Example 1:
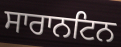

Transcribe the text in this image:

ਸਾਰਾਨਟਿਨ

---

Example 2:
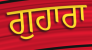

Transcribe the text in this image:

ਗੁਹਾਰਾ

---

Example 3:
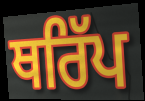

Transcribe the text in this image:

ਥਰਿੱਪ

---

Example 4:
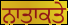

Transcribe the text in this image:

ਨਾਤਾਕਤੇ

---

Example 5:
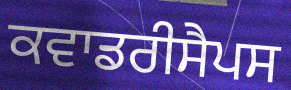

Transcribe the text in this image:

ਕਵਾਡਰੀਸੈਪਸ